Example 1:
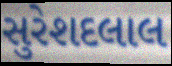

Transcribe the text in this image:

સુરેશદલાલ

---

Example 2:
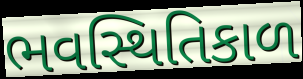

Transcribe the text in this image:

ભવસ્થિતિકાળ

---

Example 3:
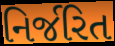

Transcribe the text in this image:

નિર્જરિત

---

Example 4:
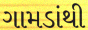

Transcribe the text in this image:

ગામડાંથી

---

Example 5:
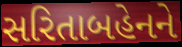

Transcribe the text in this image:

સરિતાબહેનને